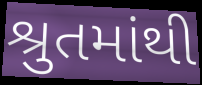
શ્રુતમાંથી